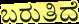
ಬರುತಿದೆ